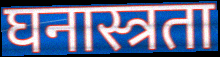
घनास्त्रता